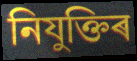
নিযুক্তিৰ